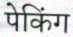
पेकिंग